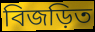
বিজড়িত